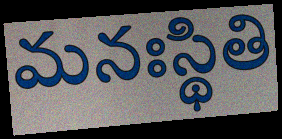
మనఃస్థితి